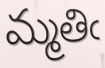
మ్మతిఁ